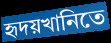
হৃদয়খানিতে